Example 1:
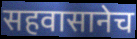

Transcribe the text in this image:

सहवासानेच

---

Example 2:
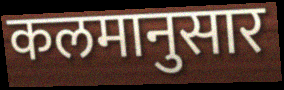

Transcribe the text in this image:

कलमानुसार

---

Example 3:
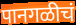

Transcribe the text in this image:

पानगळीचं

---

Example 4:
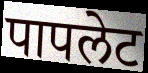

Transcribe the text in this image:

पापलेट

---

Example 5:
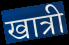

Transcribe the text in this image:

खात्री